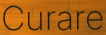
Curare